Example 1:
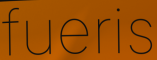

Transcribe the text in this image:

fueris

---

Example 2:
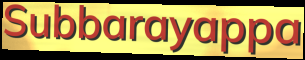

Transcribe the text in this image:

Subbarayappa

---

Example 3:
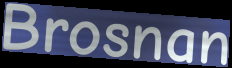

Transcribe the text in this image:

Brosnan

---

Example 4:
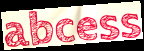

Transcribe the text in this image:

abcess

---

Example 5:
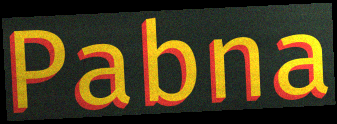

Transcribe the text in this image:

Pabna